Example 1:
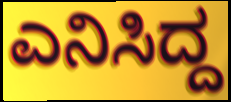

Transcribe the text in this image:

ಎನಿಸಿದ್ದ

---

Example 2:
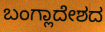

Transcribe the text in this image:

ಬಂಗ್ಲಾದೇಶದ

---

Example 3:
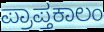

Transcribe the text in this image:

ಪ್ರಾಪ್ತಕಾಲಂ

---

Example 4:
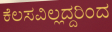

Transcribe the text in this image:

ಕೆಲಸವಿಲ್ಲದ್ದರಿಂದ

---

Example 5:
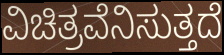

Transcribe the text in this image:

ವಿಚಿತ್ರವೆನಿಸುತ್ತದೆ